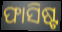
ଫାସିଷ୍ଟ